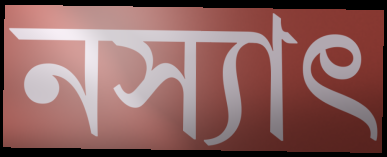
নস্যাৎ